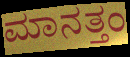
ಮಾನತ್ತಂ